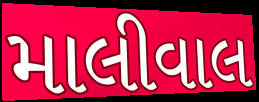
માલીવાલ